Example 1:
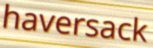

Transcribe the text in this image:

haversack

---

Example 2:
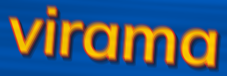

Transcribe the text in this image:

virama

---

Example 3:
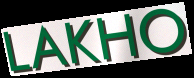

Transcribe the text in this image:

LAKHO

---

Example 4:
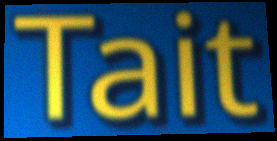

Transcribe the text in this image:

Tait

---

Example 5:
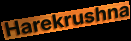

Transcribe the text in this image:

Harekrushna